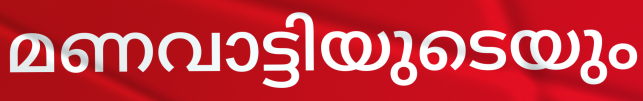
മണവാട്ടിയുടെയും